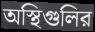
অস্থিগুলির